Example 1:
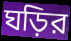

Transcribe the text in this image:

ঘড়ির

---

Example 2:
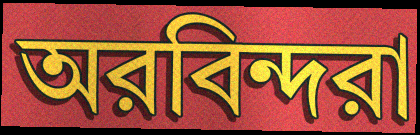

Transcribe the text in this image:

অরবিন্দরা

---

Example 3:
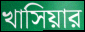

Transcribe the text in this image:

খাসিয়ার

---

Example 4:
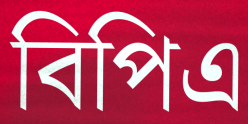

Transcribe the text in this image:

বিপিএ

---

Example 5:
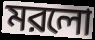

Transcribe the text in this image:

মরলো